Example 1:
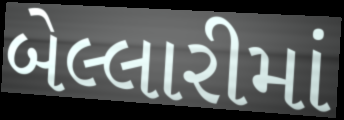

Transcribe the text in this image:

બેલ્લારીમાં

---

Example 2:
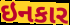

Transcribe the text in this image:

ઇનકાર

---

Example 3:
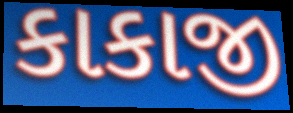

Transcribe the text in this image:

કાકાજી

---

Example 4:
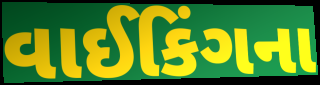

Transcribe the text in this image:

વાઈકિંગના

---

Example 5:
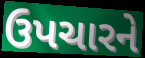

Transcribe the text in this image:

ઉપચારને